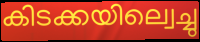
കിടക്കയില്വെച്ചു